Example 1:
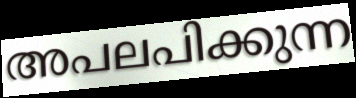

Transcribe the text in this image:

അപലപിക്കുന്ന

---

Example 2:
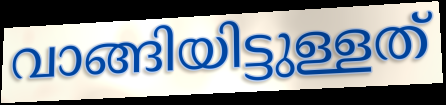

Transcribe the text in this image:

വാങ്ങിയിട്ടുള്ളത്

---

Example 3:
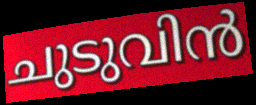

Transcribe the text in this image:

ചുടുവിൻ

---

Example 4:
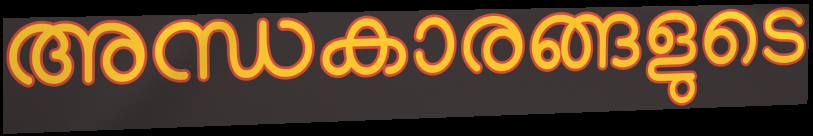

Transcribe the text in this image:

അന്ധകാരങ്ങളുടെ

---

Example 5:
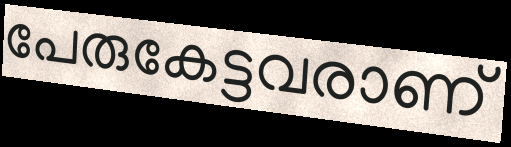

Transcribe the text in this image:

പേരുകേട്ടവരാണ്